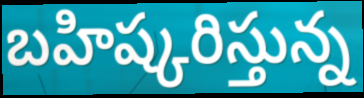
బహిష్కరిస్తున్న